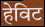
हेविट